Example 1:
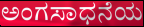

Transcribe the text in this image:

ಅಂಗಸಾಧನೆಯ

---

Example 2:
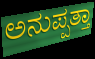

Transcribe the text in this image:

ಅನುಪ್ಪತ್ತಾ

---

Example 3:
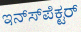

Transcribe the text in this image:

ಇನ್ಸ್‍ಪೆಕ್ಟರ್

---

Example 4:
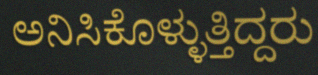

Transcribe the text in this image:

ಅನಿಸಿಕೊಳ್ಳುತ್ತಿದ್ದರು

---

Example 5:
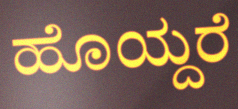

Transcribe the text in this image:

ಹೊಯ್ದರೆ